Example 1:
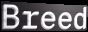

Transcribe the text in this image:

Breed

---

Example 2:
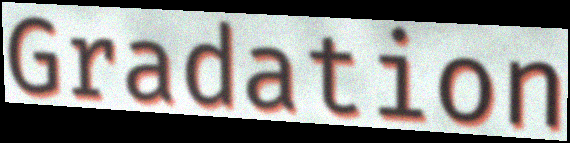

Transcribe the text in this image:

Gradation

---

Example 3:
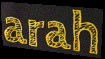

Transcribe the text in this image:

arah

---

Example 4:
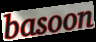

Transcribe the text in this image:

basoon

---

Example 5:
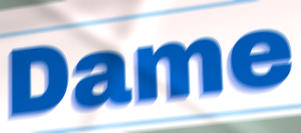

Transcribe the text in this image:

Dame